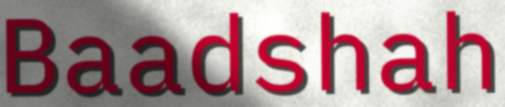
Baadshah